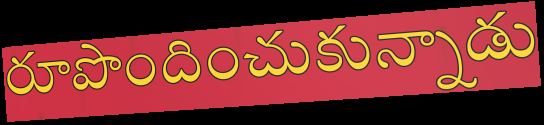
రూపొందించుకున్నాడు